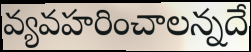
వ్యవహరించాలన్నదే